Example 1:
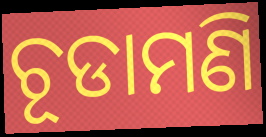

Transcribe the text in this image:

ଚୂଡାମଣି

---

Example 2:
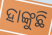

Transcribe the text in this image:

ହାଙ୍କୁଛି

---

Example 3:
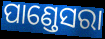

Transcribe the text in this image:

ପାଣ୍ଡେସରା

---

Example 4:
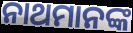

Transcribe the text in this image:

ନାଥମାନଙ୍କ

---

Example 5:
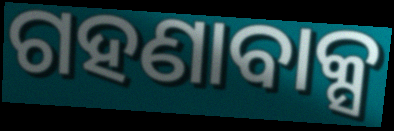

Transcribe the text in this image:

ଗହଣାବାକ୍ସ